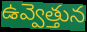
ఉవ్వెత్తున